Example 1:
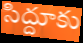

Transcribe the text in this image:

సిద్దూకు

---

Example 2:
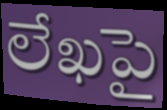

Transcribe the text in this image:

లేఖపై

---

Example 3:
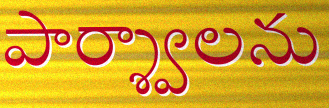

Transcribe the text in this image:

పార్శ్వాలను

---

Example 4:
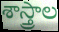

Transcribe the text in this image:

శాస్త్రాల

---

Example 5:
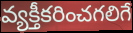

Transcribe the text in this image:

వ్యక్తీకరించగలిగే